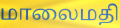
மாலைமதி